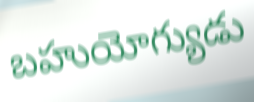
బహుయోగ్యుడు